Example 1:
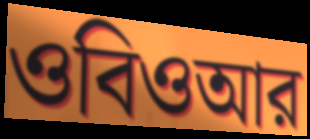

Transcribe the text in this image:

ওবিওআর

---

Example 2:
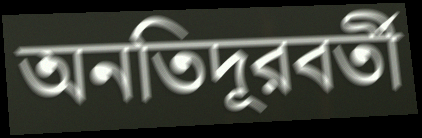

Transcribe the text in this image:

অনতিদূরবর্তী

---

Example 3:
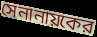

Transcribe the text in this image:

সেনানায়কের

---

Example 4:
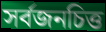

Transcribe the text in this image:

সর্বজনচিত্ত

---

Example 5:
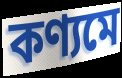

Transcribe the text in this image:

কণ্যমে